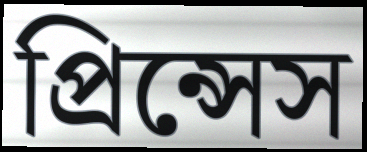
প্রিন্সেস